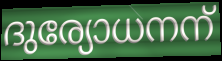
ദുര്യോധനന്